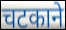
चटकाने